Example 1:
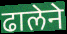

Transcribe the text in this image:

ढालेने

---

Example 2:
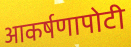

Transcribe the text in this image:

आकर्षणापोटी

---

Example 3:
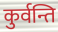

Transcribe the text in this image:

कुर्वन्ति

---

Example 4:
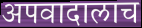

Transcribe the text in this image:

अपवादालाच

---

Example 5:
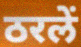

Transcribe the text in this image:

ठरलें